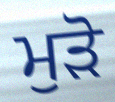
ਮੁਡ਼ੋ